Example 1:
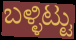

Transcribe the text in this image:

ಬಳ್ಳಿಟ್ಟು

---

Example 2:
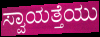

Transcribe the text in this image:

ಸ್ವಾಯತ್ತೆಯು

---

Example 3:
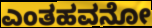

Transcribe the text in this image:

ಎಂತಹವನೋ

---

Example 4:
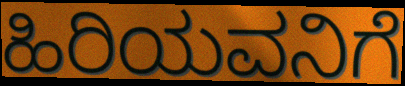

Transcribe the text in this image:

ಹಿರಿಯವನಿಗೆ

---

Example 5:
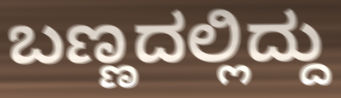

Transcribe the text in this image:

ಬಣ್ಣದಲ್ಲಿದ್ದು